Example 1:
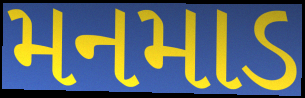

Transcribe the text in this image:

મનમાડ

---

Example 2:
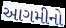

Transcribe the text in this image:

આગમીનો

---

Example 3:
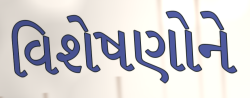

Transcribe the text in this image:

વિશેષણોને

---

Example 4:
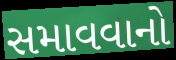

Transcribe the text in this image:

સમાવવાનો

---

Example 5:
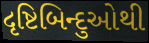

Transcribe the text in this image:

દૃષ્ટિબિન્દુઓથી